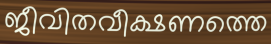
ജീവിതവീക്ഷണത്തെ